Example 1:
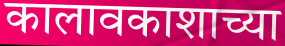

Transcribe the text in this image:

कालावकाशाच्या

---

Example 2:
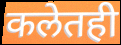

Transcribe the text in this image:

कलेतही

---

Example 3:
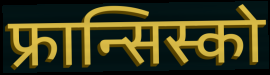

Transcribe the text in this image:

फ्रान्सिस्को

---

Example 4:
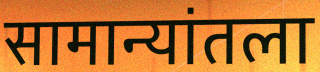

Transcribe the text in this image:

सामान्यांतला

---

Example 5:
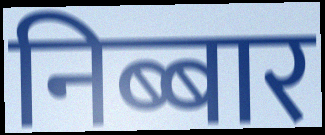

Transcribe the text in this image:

निब्बार